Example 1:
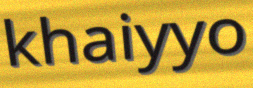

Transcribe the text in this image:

khaiyyo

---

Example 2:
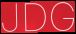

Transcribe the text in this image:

JDG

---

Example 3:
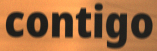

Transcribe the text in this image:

contigo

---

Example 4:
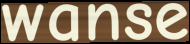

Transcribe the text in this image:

wanse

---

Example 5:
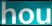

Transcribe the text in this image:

hou